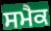
ਸਮੈਕ